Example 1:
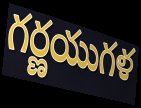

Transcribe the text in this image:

గర్ణయుగళ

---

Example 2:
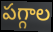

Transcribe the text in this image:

పగ్గాల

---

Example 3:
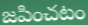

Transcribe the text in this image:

జపించటం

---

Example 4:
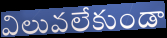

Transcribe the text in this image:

విలువలేకుండా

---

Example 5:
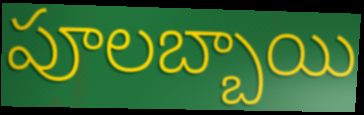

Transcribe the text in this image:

పూలబ్బాయి